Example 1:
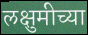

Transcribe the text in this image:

लक्षुमीच्या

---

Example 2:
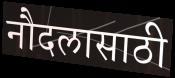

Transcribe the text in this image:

नौदलासाठी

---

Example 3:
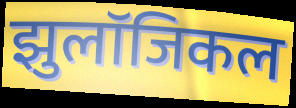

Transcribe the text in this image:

झुलॉजिकल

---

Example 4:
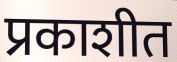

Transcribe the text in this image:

प्रकाशीत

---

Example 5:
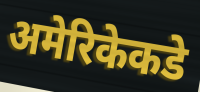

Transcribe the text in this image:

अमेरिकेकडे